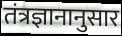
तंत्रज्ञानानुसार